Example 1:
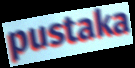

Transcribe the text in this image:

pustaka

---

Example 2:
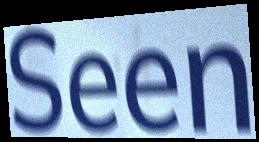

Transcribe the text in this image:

Seen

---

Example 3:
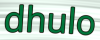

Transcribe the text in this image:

dhulo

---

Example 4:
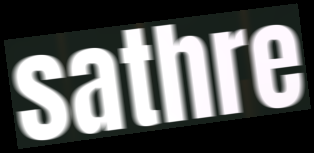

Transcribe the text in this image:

sathre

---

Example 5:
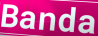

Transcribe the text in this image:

Banda